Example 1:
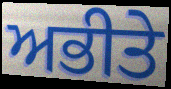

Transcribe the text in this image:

ਅਭੀਤੇ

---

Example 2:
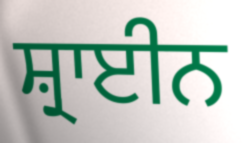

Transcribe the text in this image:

ਸ਼੍ਰਾਈਨ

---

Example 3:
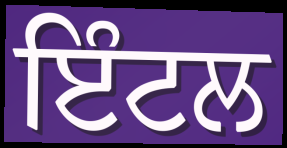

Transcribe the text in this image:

ਇੰਟਲ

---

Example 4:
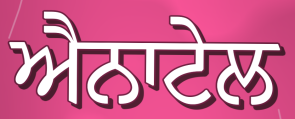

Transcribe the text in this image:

ਐਨਾਟੇਲ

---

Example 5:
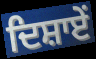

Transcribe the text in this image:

ਦਿਸ਼ਾਏਂ